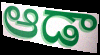
ఆడా